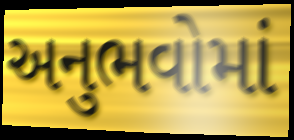
અનુભવોમાં